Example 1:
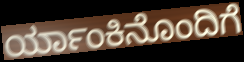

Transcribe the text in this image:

ರ್ಯಾಂಕಿನೊಂದಿಗೆ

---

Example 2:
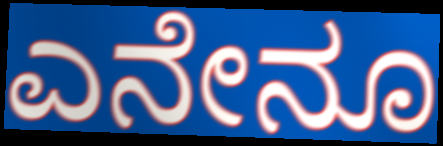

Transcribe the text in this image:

ಎನೇನೂ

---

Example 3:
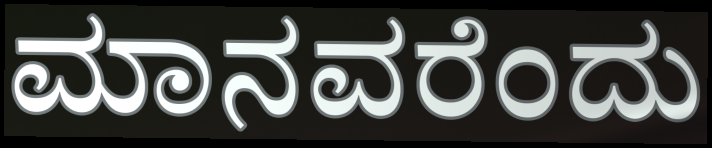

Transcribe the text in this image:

ಮಾನವರೆಂದು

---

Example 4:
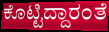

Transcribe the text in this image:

ಕೊಟ್ಟಿದ್ದಾರಂತೆ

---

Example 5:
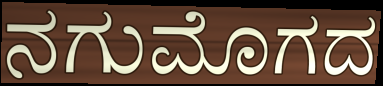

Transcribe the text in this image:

ನಗುಮೊಗದ